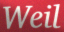
Weil